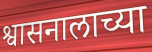
श्वासनालाच्या